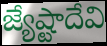
జ్యేష్టాదేవి